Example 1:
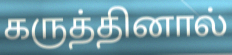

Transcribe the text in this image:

கருத்தினால்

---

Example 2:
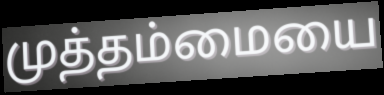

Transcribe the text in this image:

முத்தம்மையை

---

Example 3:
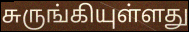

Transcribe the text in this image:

சுருங்கியுள்ளது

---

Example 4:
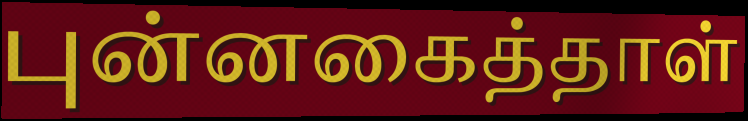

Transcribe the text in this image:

புன்னகைத்தாள்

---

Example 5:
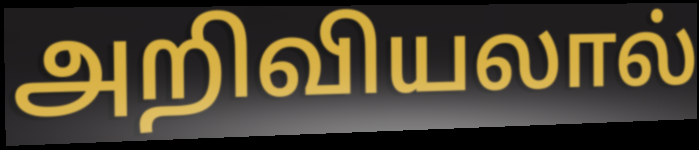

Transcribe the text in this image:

அறிவியலால்